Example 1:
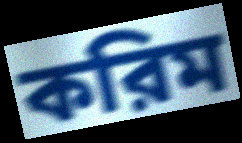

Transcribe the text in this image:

করিম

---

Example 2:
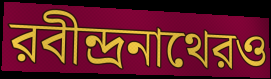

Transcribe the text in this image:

রবীন্দ্রনাথেরও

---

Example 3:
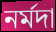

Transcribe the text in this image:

নর্মদা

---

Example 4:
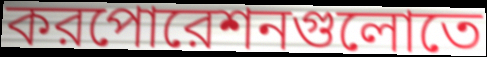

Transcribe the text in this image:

করপোরেশনগুলোতে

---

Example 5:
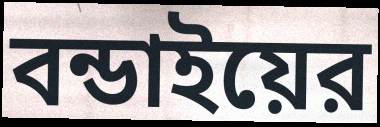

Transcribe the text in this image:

বন্ডাইয়ের